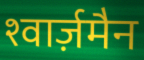
श्वार्ज़मैन